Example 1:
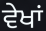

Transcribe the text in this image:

ਵੇਖਾਂ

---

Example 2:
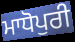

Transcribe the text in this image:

ਮਾਧੋਪੁਰੀ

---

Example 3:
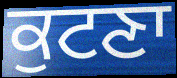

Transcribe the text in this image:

ਕੁਟਣਾ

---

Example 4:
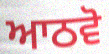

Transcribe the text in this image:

ਆਠਵੋ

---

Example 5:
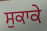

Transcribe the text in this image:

ਸੁਕਾਕੇ